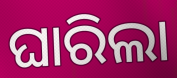
ଘାରିଲା